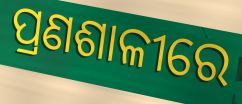
ପ୍ରଣଶାଳୀରେ